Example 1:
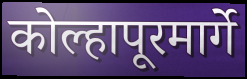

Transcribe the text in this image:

कोल्हापूरमार्गे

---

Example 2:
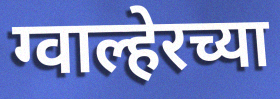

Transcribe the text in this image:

ग्वाल्हेरच्या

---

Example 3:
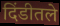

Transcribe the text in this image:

दिंडीतले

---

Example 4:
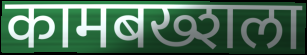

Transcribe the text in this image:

कामबख्शला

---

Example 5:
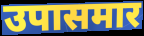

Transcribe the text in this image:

उपासमार